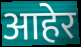
आहेर